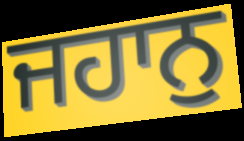
ਜਹਾਨੁ